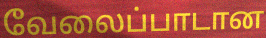
வேலைப்பாடான